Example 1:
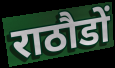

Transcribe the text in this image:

राठौडों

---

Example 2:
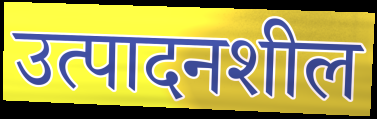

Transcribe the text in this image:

उत्पादनशील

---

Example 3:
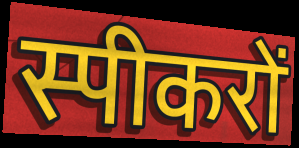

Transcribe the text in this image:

स्पीकरों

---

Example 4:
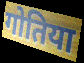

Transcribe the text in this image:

गोतिया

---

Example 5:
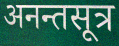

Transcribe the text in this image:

अनन्तसूत्र